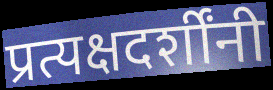
प्रत्यक्षदर्शींनी